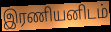
இரணியனிடம்